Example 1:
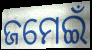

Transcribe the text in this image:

ଜମେଇଁ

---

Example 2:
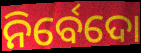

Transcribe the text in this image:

ନିର୍ବେଦୋ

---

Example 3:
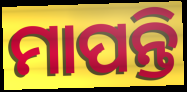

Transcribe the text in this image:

ମାପନ୍ତି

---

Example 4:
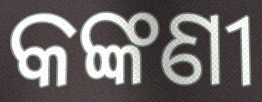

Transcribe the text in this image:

କଙ୍କଣୀ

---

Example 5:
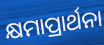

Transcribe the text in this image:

କ୍ଷମାପ୍ରାର୍ଥନା